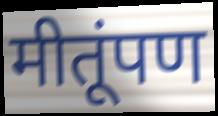
मीतूंपण